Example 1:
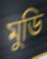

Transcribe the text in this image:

মুডি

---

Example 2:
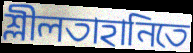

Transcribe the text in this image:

শ্লীলতাহানিতে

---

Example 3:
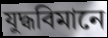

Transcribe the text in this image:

যুদ্ধবিমানে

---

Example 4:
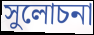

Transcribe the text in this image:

সুলোচনা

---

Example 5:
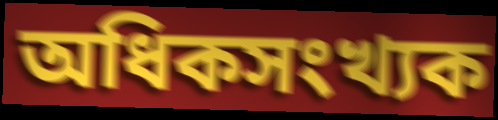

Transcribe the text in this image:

অধিকসংখ্যক